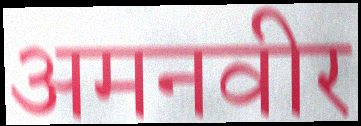
अमनवीर